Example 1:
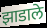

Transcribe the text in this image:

झाडाले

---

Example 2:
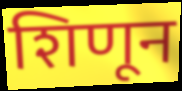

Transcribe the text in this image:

शिणून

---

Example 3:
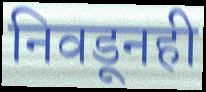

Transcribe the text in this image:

निवडूनही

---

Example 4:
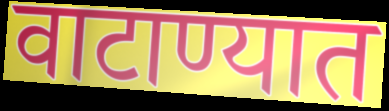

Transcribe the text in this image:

वाटाण्यात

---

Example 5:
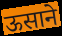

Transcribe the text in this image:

ऊसाने